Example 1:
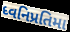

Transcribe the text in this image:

ધ્વનિપ્રતિમા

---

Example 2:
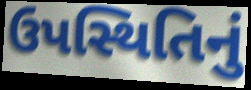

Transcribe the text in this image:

ઉપસ્થિતિનું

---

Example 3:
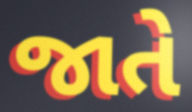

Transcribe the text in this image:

જાતે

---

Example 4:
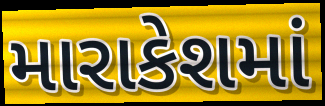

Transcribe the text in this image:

મારાકેશમાં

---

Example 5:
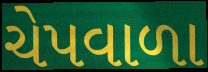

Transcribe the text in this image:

ચેપવાળા